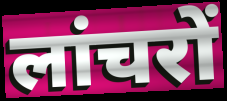
लांचरों